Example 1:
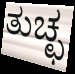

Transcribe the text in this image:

ತುಚ್ಛ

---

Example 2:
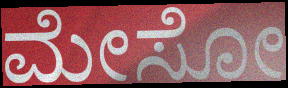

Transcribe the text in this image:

ಮೇಸೋ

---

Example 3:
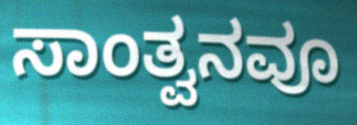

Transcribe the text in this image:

ಸಾಂತ್ವನವೂ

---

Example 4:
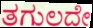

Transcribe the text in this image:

ತಗುಲದೇ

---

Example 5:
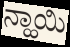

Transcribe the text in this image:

ನ್ಹಾಯಿ